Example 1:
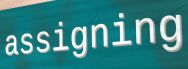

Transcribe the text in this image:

assigning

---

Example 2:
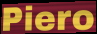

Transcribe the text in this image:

Piero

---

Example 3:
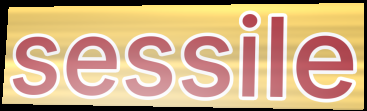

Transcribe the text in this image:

sessile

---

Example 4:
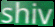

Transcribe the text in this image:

shiv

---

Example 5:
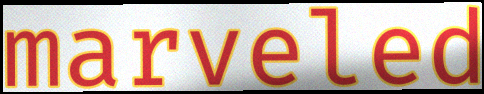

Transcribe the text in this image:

marveled